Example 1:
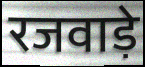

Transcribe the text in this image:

रजवाड़े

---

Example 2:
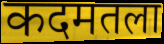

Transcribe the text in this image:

कदमतला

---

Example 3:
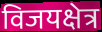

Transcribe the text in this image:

विजयक्षेत्र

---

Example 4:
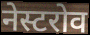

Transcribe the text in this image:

नेस्टरोव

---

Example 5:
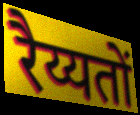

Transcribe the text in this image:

रैय्यतों